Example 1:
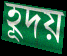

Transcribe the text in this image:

হূদয়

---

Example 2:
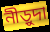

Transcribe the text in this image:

নীড়ুদা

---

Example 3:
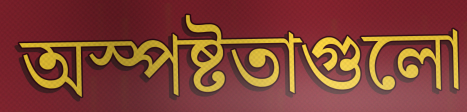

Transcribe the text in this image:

অস্পষ্টতাগুলো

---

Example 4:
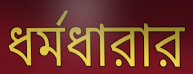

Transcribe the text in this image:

ধর্মধারার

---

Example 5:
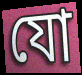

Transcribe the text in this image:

যো